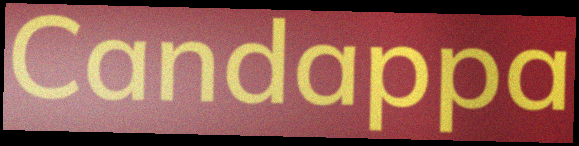
Candappa